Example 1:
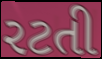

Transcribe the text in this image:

રટતી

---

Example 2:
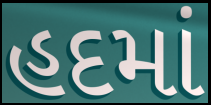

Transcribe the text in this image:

હદમાં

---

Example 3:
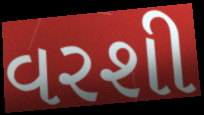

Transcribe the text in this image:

વરશી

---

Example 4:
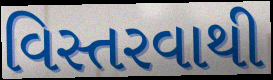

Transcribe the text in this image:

વિસ્તરવાથી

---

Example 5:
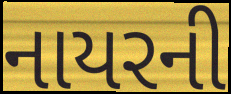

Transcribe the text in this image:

નાયરની